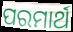
ପରମାର୍ଥ